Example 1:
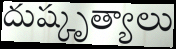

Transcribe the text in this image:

దుష్కృత్యాలు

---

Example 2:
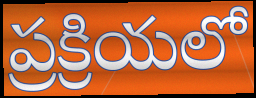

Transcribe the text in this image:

ప్రక్రియలో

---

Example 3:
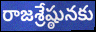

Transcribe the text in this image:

రాజశ్రేష్ఠునకు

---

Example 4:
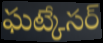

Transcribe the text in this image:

ఘట్కేసర్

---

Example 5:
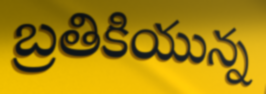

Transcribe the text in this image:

బ్రతికియున్న